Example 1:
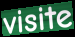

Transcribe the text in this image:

visite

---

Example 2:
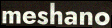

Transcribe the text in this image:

meshano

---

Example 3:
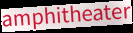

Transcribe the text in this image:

amphitheater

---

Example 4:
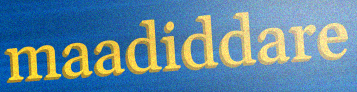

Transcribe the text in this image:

maadiddare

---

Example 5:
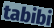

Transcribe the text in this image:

tabibi